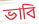
ভাবি